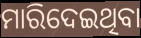
ମାରିଦେଇଥିବା